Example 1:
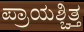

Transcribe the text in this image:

ಪ್ರಾಯಶ್ಚಿತ್ತ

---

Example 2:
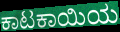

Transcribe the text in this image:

ಕಾಟಕಾಯಿಯ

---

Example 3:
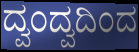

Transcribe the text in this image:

ದ್ವಂದ್ವದಿಂದ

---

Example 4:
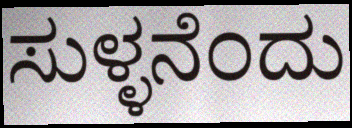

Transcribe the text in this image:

ಸುಳ್ಳನೆಂದು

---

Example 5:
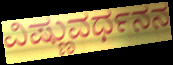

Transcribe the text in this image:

ವಿಷ್ಣುವರ್ಧನನ